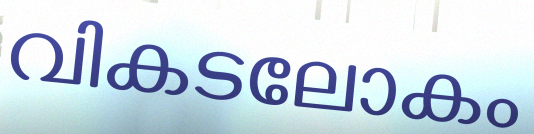
വികടലോകം